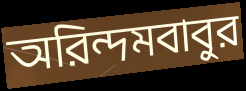
অরিন্দমবাবুর